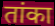
तांका